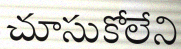
చూసుకోలేని